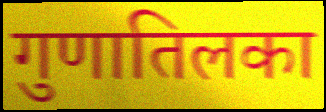
गुणातिलका